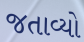
જતાવ્યો